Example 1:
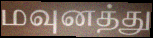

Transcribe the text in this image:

மவுனத்து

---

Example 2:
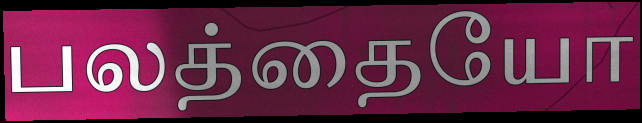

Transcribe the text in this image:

பலத்தையோ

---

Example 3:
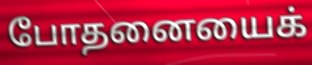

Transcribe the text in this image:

போதனையைக்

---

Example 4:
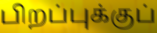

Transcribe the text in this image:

பிறப்புக்குப்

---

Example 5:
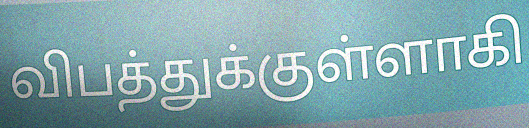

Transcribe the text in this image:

விபத்துக்குள்ளாகி